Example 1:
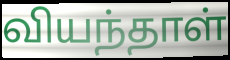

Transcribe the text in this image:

வியந்தாள்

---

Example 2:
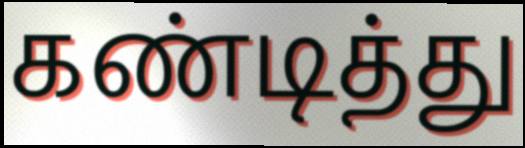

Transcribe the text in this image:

கண்டித்து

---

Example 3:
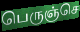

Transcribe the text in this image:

பெருஞ்செ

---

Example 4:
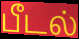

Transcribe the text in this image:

பீடல்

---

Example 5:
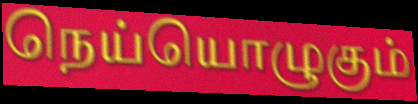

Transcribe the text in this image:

நெய்யொழுகும்